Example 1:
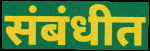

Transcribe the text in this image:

संबंधीत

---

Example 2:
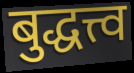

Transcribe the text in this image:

बुद्धत्त्व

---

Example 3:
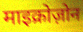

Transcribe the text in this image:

माइक्रोज़ोन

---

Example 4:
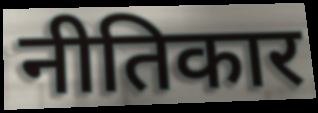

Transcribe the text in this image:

नीतिकार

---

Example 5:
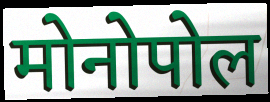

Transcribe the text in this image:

मोनोपोल